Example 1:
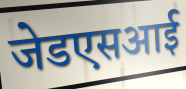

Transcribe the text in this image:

जेडएसआई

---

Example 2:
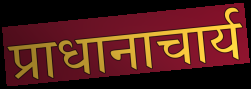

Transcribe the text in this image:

प्राधानाचार्य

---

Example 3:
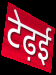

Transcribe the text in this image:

टेढ़ई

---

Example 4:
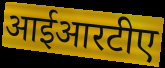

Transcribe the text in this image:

आईआरटीए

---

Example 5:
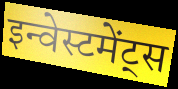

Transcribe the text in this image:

इन्वेस्टमेंट्स